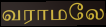
வராமலே